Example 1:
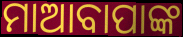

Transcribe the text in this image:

ମାଆବାପାଙ୍କ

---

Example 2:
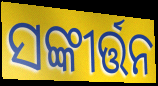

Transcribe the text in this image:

ସଙ୍କୀର୍ତ୍ତନ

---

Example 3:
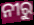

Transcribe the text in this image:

ନୀରୁ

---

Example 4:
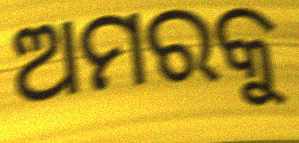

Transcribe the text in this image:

ଅମରକୁ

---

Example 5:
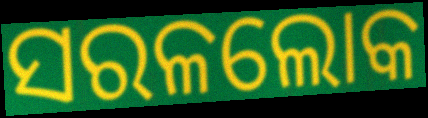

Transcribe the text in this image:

ସରଳଲୋକ